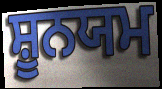
ਸ਼ੂਨਯਮ